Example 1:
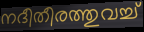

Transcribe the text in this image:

നദീതീരത്തുവച്ച്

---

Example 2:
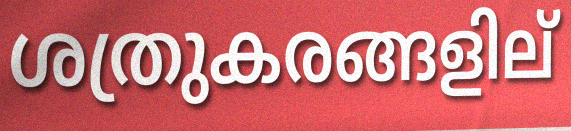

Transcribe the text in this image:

ശത്രുകരങ്ങളില്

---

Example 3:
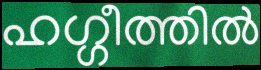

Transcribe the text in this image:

ഹഗ്ഗീത്തിൽ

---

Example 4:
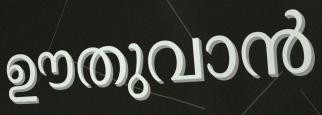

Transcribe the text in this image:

ഊതുവാൻ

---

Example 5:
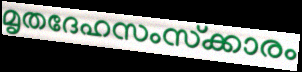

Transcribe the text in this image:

മൃതദേഹസംസ്‌ക്കാരം